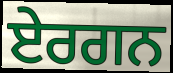
ਏਰਗਨ